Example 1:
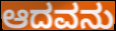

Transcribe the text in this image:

ಆದವನು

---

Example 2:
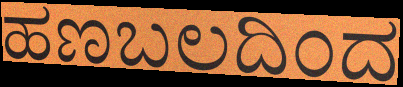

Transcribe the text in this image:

ಹಣಬಲದಿಂದ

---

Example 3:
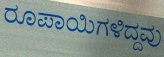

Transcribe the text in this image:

ರೂಪಾಯಿಗಳಿದ್ದವು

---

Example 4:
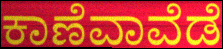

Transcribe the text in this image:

ಕಾಣೆವಾವೆಡೆ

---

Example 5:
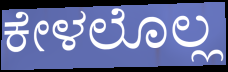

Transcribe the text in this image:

ಕೇಳಲೊಲ್ಲ